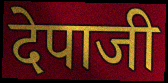
देपाजी